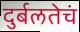
दुर्बलतेचं